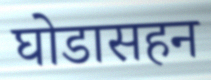
घोडासहन